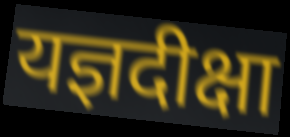
यज्ञदीक्षा